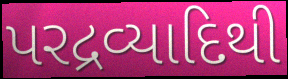
પરદ્રવ્યાદિથી